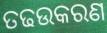
ତଢଉକରଣ